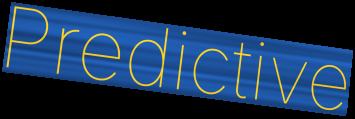
Predictive